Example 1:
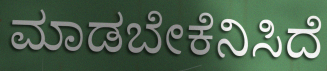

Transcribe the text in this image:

ಮಾಡಬೇಕೆನಿಸಿದೆ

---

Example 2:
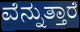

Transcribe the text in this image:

ವೆನ್ನುತ್ತಾರೆ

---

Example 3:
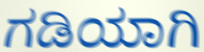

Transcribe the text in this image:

ಗಡಿಯಾಗಿ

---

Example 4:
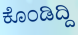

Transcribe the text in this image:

ಕೊಂಡಿದ್ದಿ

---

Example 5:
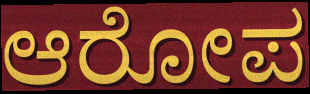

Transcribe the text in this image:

ಆರೋಪ